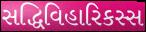
સદ્ધિવિહારિકસ્સ